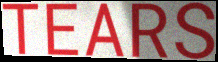
TEARS